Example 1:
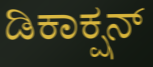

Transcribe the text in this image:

ಡಿಕಾಕ್ಷನ್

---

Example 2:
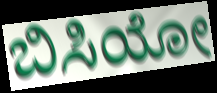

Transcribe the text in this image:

ಬಿಸಿಯೋ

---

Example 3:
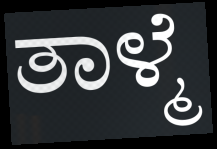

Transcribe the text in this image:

ತಾಳ್ಮೆ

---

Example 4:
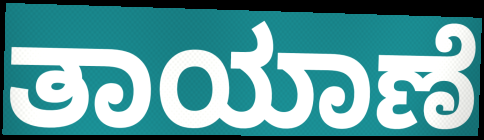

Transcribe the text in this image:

ತಾಯಾಣೆ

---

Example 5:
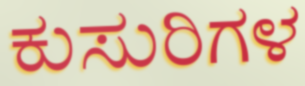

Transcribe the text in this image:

ಕುಸುರಿಗಳ